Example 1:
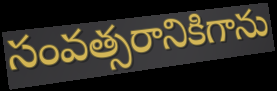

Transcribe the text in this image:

సంవత్సరానికిగాను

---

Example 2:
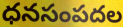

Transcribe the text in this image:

ధనసంపదల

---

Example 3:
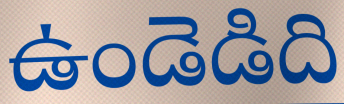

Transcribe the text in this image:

ఉండెడిది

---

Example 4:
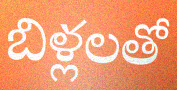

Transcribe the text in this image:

బిళ్లలతో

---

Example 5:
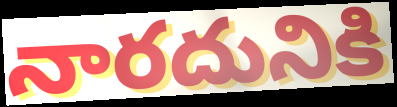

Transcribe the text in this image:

నారదునికి